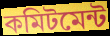
কমিটমেন্ট